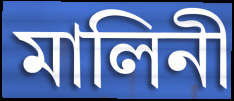
মালিনী